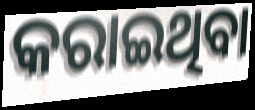
କରାଇଥିବା